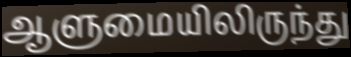
ஆளுமையிலிருந்து